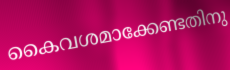
കൈവശമാക്കേണ്ടതിനു